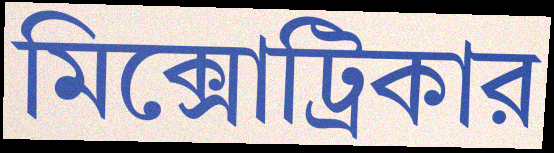
মিক্সোট্রিকার